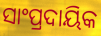
ସାଂପ୍ରଦାୟିକ